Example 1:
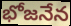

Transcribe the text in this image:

భోజనేన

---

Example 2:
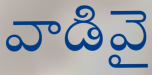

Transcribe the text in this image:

వాడివై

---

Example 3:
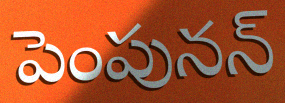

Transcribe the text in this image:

పెంపునన్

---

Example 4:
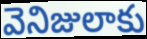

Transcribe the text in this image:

వెనిజులాకు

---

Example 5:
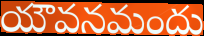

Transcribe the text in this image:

యౌవనమందు